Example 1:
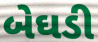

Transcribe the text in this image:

બેઘડી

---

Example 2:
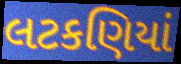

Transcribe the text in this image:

લટકણિયાં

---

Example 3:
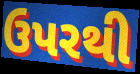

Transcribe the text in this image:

ઉપરથી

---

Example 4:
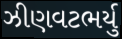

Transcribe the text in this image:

ઝીણવટભર્યુ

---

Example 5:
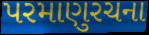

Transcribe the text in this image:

પરમાણુરચના